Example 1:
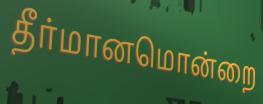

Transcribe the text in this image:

தீர்மானமொன்றை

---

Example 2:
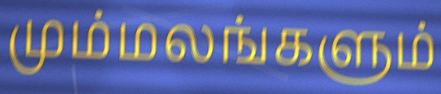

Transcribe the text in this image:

மும்மலங்களும்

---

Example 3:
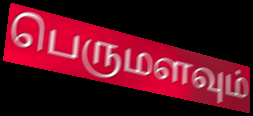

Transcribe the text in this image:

பெருமளவும்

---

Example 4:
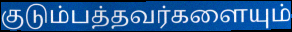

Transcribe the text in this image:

குடும்பத்தவர்களையும்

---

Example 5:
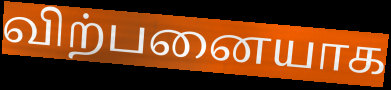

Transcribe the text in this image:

விற்பனையாக